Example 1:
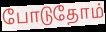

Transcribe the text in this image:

போடுதோம்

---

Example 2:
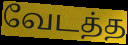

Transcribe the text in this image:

வேடத்த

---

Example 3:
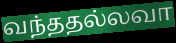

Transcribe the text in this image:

வந்ததல்லவா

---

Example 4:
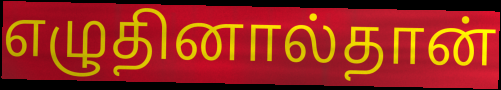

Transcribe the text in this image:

எழுதினால்தான்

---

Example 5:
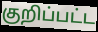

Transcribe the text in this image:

குறிப்பட்ட